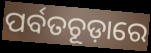
ପର୍ବତଚୂଡ଼ାରେ